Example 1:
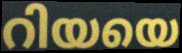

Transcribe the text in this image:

റിയയെ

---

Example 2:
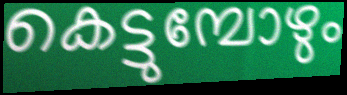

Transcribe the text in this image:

കെട്ടുമ്പോഴും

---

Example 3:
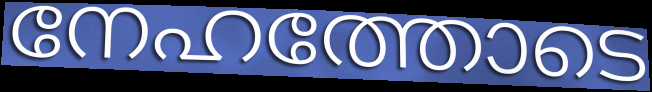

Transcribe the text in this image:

നേഹത്തോടെ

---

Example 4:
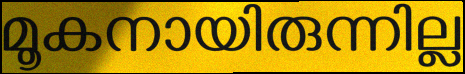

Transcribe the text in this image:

മൂകനായിരുന്നില്ല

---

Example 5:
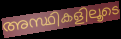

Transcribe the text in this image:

അസ്ഥികളിലൂടെ